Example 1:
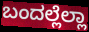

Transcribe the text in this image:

ಬಂದಲ್ಲೆಲ್ಲಾ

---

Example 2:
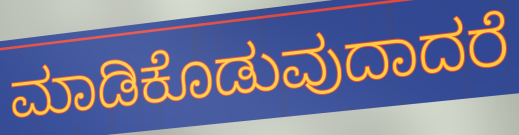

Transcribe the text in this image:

ಮಾಡಿಕೊಡುವುದಾದರೆ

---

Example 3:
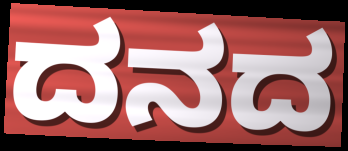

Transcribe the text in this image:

ದನದ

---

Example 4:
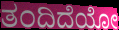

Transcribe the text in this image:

ತಂದಿದೆಯೋ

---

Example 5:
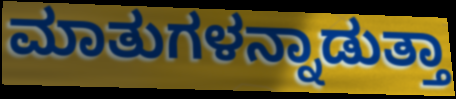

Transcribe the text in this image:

ಮಾತುಗಳನ್ನಾಡುತ್ತಾ